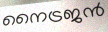
നൈട്രജൻ